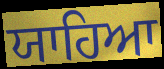
ਯਾਹਿਆ